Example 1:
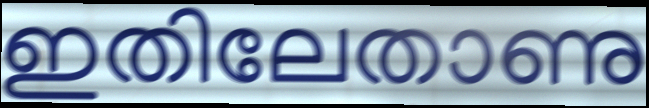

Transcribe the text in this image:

ഇതിലേതാണു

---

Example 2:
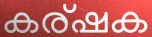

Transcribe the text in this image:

കര്ഷക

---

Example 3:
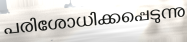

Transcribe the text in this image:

പരിശോധിക്കപ്പെടുന്നു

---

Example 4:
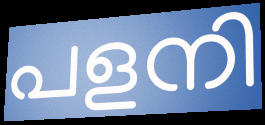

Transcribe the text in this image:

പളനി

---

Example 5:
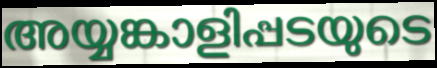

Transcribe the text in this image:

അയ്യങ്കാളിപ്പടയുടെ